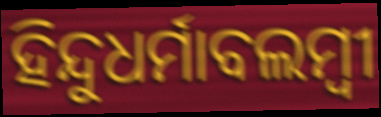
ହିନ୍ଦୁଧର୍ମାବଲମ୍ବୀ